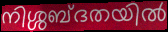
നിശ്ശബ്ദതയിൽ